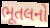
ભૂતલનો